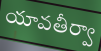
యావతీర్వా